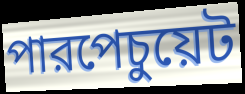
পারপেচুয়েট